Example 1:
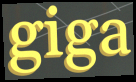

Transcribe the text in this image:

giga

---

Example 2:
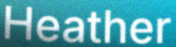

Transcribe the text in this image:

Heather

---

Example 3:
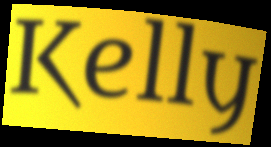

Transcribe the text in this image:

Kelly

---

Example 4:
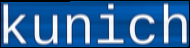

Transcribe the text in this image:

kunich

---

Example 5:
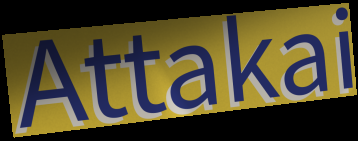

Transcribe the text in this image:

Attakai